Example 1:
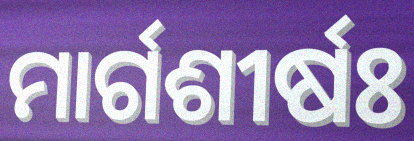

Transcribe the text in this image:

ମାର୍ଗଶୀର୍ଷଃ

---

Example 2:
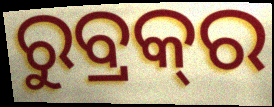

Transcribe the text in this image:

ରୁବ୍ରକ୍‍ର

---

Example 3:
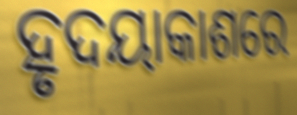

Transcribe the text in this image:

ହୃଦୟାକାଶରେ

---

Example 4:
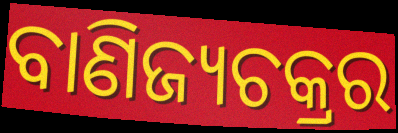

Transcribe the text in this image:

ବାଣିଜ୍ୟଚକ୍ରର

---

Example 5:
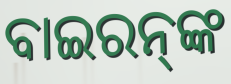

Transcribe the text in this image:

ବାଇରନ୍‌ଙ୍କ